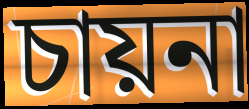
চায়না